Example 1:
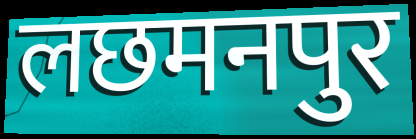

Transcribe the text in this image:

लछमनपुर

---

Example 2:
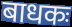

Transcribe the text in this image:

बाधकः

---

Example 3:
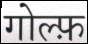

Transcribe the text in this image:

गोल्फ़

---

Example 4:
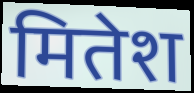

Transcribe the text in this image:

मितेश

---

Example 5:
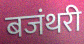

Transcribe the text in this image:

बजंथरी